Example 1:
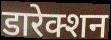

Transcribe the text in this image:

डारेक्शन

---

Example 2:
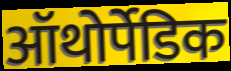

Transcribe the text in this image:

ऑथोर्पेडिक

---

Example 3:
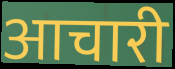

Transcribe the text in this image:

आचारी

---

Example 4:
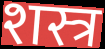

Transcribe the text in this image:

शस्त्र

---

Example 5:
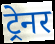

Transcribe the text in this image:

ट्रेनर